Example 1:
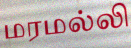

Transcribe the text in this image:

மரமல்லி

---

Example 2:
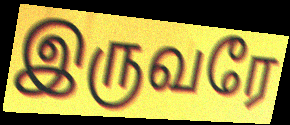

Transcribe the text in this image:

இருவரே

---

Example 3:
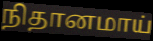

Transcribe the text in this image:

நிதானமாய்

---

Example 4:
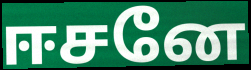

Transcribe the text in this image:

ஈசனே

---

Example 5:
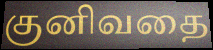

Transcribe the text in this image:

குனிவதை